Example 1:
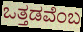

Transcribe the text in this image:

ಒತ್ತಡವೆಂಬ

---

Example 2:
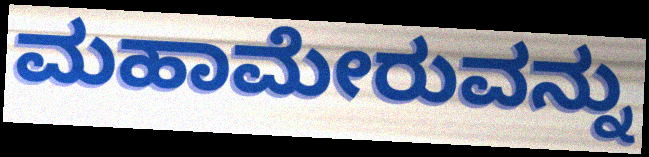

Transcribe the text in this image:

ಮಹಾಮೇರುವನ್ನು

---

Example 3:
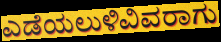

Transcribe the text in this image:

ಎಡೆಯಲುಳಿವಿವರಾಗು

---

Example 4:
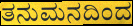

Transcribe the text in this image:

ತನುಮನದಿಂದ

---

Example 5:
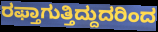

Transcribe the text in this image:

ರಫ್ತಾಗುತ್ತಿದ್ದುದರಿಂದ